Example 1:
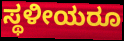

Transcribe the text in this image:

ಸ್ಥಳೀಯರೂ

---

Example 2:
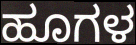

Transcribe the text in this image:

ಹೂಗಳ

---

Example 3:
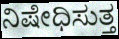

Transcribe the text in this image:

ನಿಷೇಧಿಸುತ್ತ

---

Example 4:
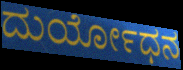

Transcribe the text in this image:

ದುರ್ಯೋಧನ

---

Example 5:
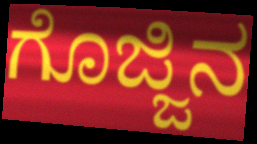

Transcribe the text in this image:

ಗೊಜ್ಜಿನ